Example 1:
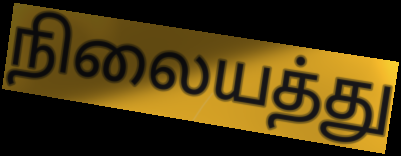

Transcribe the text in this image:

நிலையத்து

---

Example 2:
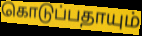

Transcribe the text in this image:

கொடுப்பதாயும்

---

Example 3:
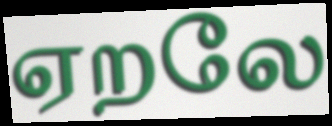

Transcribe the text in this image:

ஏறலே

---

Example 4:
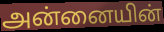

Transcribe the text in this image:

அன்னையின்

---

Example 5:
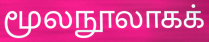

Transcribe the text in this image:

மூலநூலாகக்